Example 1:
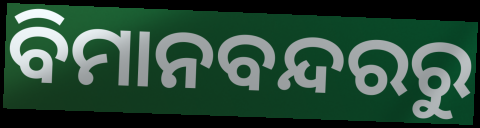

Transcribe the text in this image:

ବିମାନବନ୍ଦରରୁ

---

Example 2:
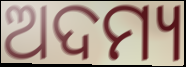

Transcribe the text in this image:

ଅଦମ୍ୟ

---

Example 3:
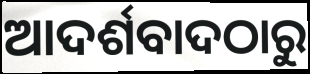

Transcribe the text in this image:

ଆଦର୍ଶବାଦଠାରୁ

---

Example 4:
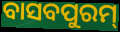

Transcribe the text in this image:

ବାସବପୁରମ୍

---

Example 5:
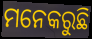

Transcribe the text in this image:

ମନେକରୁଛି